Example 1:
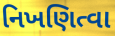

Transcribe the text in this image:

નિખણિત્વા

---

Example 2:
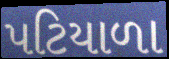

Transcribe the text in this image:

પટિયાળા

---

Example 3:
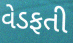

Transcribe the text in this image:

વેડફતી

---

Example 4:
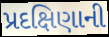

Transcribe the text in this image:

પ્રદક્ષિણાની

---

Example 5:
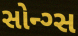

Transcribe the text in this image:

સોન્ગ્સ